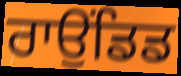
ਰਾਉਂਡਿਡ